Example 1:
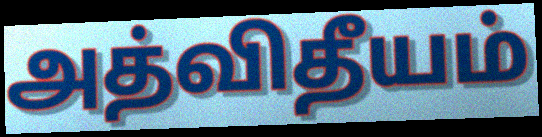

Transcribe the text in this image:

அத்விதீயம்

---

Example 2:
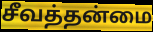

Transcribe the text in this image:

சீவத்தன்மை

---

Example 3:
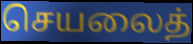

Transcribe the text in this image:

செயலைத்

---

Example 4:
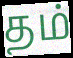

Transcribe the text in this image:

தம்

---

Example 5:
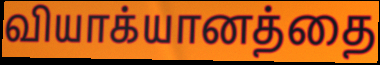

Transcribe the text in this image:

வியாக்யானத்தை